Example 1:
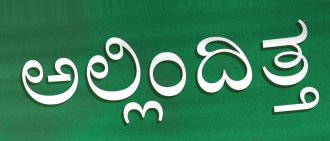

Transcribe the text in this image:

ಅಲ್ಲಿಂದಿತ್ತ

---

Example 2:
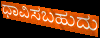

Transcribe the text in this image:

ಧಾವಿಸಬಹುದು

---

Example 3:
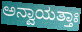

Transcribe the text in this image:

ಅನ್ವಾಯತ್ತಾಃ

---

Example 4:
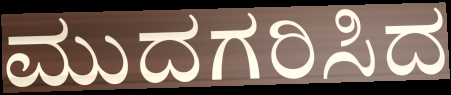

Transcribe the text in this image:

ಮುದಗರಿಸಿದ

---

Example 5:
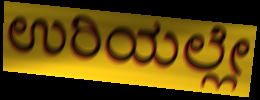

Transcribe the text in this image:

ಉರಿಯಲ್ಲೇ